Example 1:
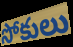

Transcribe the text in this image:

సోకులు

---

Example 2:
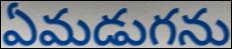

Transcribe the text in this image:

ఏమడుగను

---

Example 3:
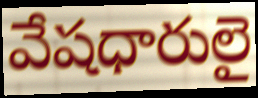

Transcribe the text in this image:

వేషధారులై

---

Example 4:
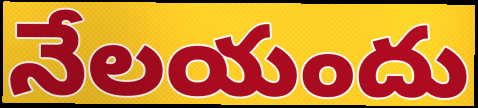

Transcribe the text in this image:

నేలయందు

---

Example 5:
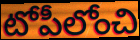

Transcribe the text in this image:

టోపీలోంచి